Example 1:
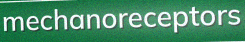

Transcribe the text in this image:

mechanoreceptors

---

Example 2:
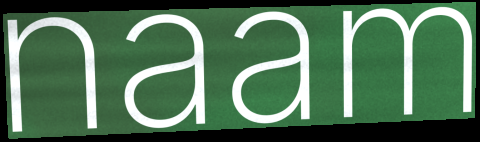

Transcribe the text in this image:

naam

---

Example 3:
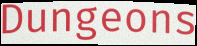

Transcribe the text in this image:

Dungeons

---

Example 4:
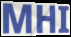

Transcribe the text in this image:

MHI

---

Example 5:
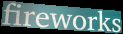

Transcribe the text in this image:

fireworks